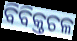
ବିବିକ୍ତଚଳ